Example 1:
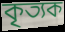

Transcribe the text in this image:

কৃত্যক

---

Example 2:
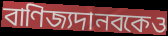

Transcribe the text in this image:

বাণিজ্যদানবকেও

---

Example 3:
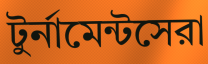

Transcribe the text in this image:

টুর্নামেন্টসেরা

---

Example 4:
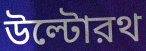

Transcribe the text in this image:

উল্টোরথ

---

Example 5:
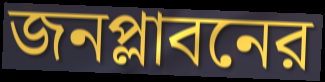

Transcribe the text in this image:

জনপ্লাবনের